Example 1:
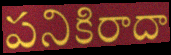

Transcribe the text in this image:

పనికిరాదా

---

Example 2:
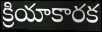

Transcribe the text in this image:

క్రియాకారక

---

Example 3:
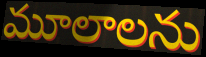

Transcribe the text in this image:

మూలాలను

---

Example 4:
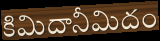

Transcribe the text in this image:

కిమిదానీమిదం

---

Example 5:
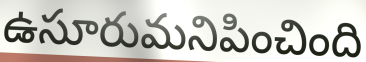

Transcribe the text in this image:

ఉసూరుమనిపించింది